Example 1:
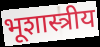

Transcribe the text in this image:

भूशास्त्रीय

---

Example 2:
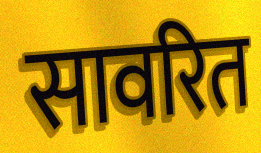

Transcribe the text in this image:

सावरित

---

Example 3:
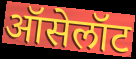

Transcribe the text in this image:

ऑसेलॉट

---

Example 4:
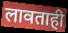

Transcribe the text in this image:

लावताही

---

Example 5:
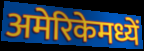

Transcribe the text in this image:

अमेरिकेमध्यें